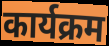
कार्यक्रम